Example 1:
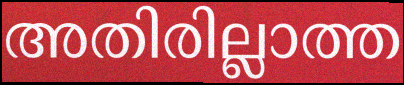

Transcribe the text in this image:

അതിരില്ലാത്ത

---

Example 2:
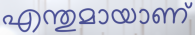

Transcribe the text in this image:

എന്തുമായാണ്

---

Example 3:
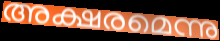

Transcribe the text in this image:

അക്ഷരമെന്നു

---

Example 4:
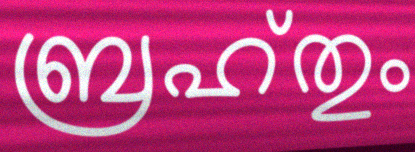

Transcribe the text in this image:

ബ്രഹ്തും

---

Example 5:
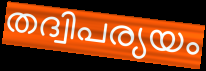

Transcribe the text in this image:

തദ്വിപര്യയം